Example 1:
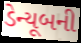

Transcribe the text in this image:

ડેન્યૂબની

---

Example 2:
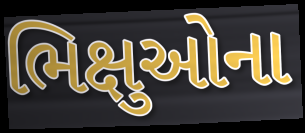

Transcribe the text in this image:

ભિક્ષુઓના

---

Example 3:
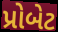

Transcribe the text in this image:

પ્રોબેટ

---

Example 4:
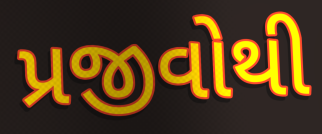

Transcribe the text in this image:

પ્રજીવોથી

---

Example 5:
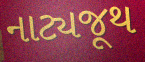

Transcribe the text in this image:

નાટ્યજૂથ